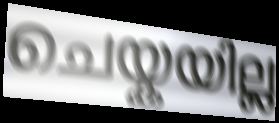
ചെയ്കയില്ല